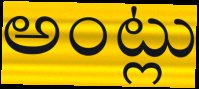
అంట్లు